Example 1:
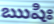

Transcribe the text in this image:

ఋషిః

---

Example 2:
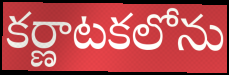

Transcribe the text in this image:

కర్ణాటకలోను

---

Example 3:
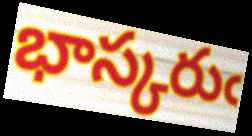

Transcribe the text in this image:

భాస్కరుఁ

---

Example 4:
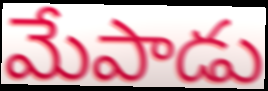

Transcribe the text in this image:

మేపాడు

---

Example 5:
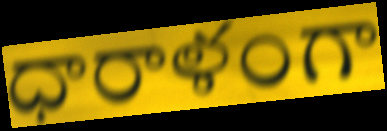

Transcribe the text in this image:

ధారాళంగా